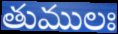
తుములః